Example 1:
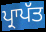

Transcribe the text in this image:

ਪ੍ਰਾਪੱਤ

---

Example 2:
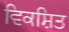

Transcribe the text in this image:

ਵਿਕਸ਼ਿਤ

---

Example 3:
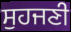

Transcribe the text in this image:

ਸੁਹਜਣੀ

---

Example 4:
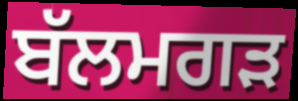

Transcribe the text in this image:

ਬੱਲਮਗੜ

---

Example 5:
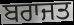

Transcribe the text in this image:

ਬਰਾਜਤ